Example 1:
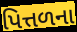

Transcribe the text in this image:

પિત્તળના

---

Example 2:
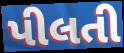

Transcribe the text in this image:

પીલતી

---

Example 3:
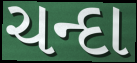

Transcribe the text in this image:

ચન્દા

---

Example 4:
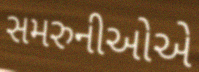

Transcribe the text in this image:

સમરુનીઓએ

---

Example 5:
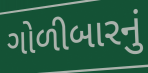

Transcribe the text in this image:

ગોળીબારનું